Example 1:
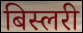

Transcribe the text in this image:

बिस्लरी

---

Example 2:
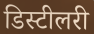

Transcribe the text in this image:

डिस्टीलरी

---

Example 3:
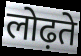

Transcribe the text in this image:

लोढ़ते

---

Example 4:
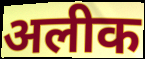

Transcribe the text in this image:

अलीक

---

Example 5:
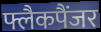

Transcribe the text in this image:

फ्लैकपैंजर